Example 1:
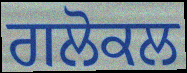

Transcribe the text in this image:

ਗਲੋਕਲ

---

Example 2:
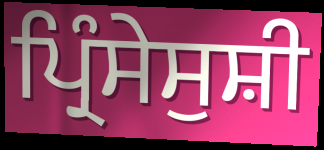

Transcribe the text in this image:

ਪ੍ਰਿੰਸੇਸੁਸ਼ੀ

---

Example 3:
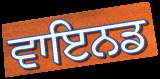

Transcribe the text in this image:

ਵਾਇਨਡ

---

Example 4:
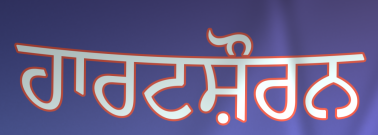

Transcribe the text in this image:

ਹਾਰਟਸ਼ੌਰਨ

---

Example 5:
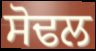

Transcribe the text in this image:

ਸੋਢਲ